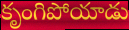
కృంగిపోయాడు